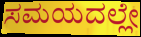
ಸಮಯದಲ್ಲೇ